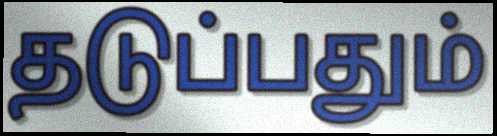
தடுப்பதும்